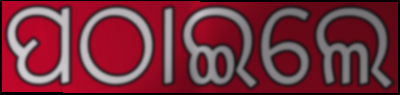
ପଠାଇଲେ